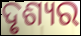
ଦୃଶ୍ୟର